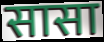
सासा